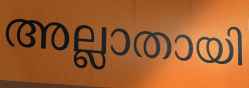
അല്ലാതായി